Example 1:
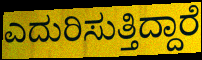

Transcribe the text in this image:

ಎದುರಿಸುತ್ತಿದ್ದಾರೆ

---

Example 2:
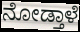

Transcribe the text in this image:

ನೋಡ್ತಾಳೆ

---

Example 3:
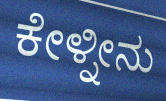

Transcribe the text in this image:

ಕೇಳ್ನೀನು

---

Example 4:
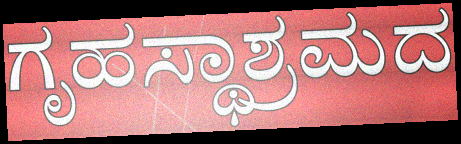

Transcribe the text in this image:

ಗೃಹಸ್ಥಾಶ್ರಮದ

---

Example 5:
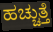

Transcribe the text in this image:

ಹಚ್ಚುತ್ತೆ